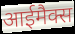
आईमैक्स